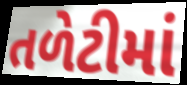
તળેટીમાં